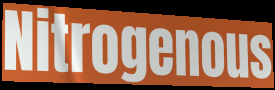
Nitrogenous